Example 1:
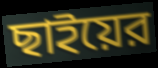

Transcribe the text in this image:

ছাইয়ের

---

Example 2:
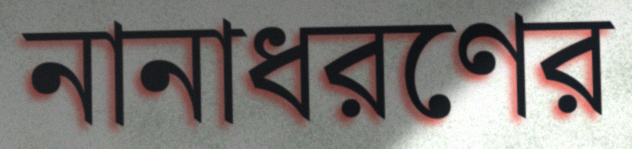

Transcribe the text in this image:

নানাধরণের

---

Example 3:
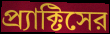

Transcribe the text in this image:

প্র্যাক্টিসের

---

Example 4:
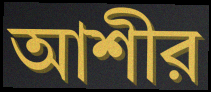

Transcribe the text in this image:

আশীর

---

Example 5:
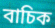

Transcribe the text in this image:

বাচিক